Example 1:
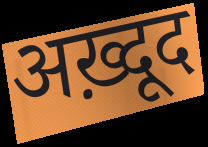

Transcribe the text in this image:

अख़्दूद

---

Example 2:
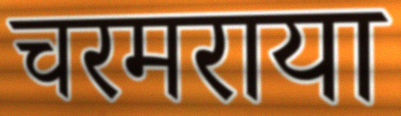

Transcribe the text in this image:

चरमराया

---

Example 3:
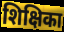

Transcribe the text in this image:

शिक्षिका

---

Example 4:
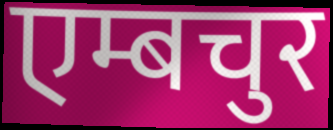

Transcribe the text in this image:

एम्बचुर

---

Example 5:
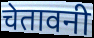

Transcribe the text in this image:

चेतावनी